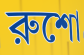
রুশো